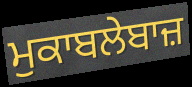
ਮੁਕਾਬਲੇਬਾਜ਼